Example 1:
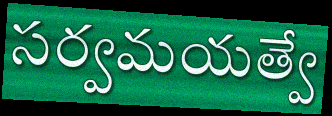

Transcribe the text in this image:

సర్వమయత్వే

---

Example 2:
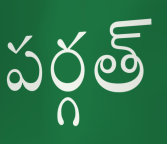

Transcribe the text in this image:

పర్గత్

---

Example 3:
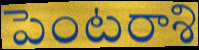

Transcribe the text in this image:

పెంటరాశి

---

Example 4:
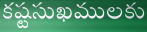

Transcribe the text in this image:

కష్టసుఖములకు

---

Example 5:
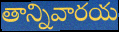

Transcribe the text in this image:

తాన్నివారయ